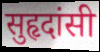
सुहृदांसी